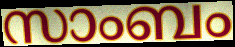
സാംബം